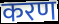
करण